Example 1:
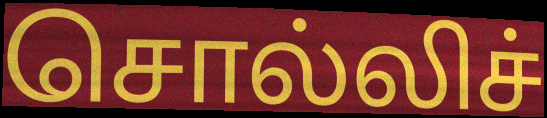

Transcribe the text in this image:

சொல்லிச்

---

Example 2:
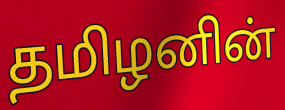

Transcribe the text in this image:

தமிழனின்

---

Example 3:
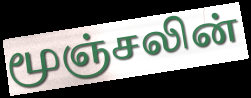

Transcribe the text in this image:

மூஞ்சலின்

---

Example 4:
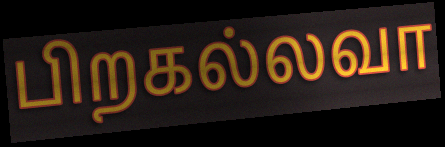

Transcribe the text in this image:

பிறகல்லவா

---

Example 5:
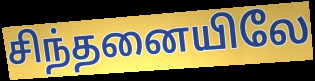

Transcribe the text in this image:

சிந்தனையிலே